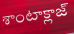
శాంటాక్లాజ్